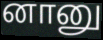
னானு